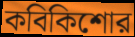
কবিকিশোর